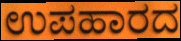
ಉಪಹಾರದ